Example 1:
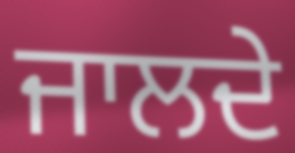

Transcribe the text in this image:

ਜਾਲਦੇ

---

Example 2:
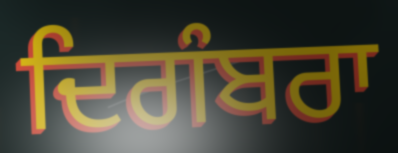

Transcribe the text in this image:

ਦਿਗੰਬਰਾ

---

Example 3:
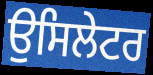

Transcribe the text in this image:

ਉਸਿਲੇਟਰ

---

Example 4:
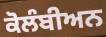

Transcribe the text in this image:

ਕੋਲੰਬੀਅਨ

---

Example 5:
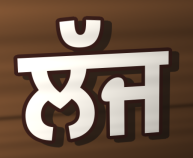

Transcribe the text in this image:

ਲੱਜ